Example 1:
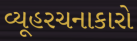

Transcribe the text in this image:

વ્યૂહરચનાકારો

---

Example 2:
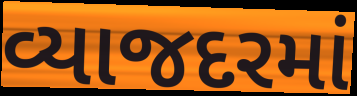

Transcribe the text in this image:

વ્યાજદરમાં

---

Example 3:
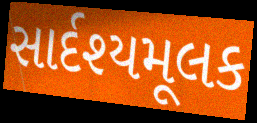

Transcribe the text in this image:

સાર્દશ્યમૂલક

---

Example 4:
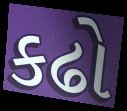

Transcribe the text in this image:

કઢો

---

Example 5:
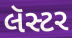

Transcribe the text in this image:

લૅસ્ટર